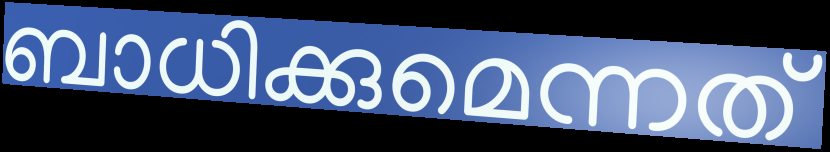
ബാധിക്കുമെന്നത്